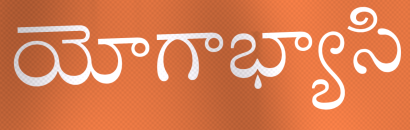
యోగాభ్యాసి